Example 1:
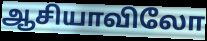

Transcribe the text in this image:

ஆசியாவிலோ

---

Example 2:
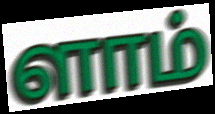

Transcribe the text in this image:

ளாம்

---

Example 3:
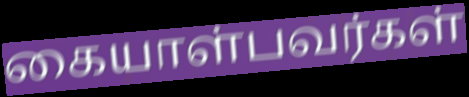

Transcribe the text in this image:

கையாள்பவர்கள்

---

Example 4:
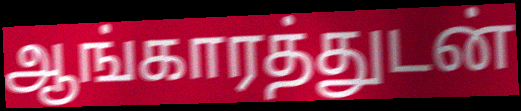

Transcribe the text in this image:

ஆங்காரத்துடன்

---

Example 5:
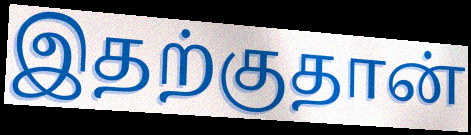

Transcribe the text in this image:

இதற்குதான்